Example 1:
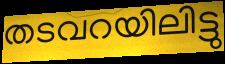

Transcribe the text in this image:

തടവറയിലിട്ടു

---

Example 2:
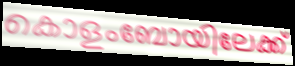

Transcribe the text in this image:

കൊളംബോയിലേക്ക്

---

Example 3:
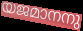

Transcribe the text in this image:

യജമാനനു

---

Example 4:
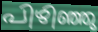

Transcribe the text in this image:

പിഴിഞ്ഞു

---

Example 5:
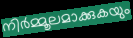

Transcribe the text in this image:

നിർമ്മൂലമാക്കുകയും